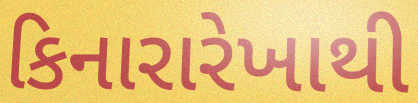
કિનારારેખાથી